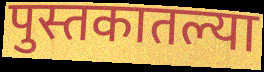
पुस्तकातल्या